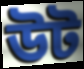
উট